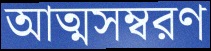
আত্মসম্বরণ